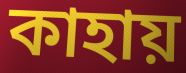
কাহায়